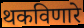
थकविणारे